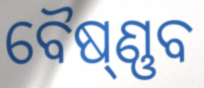
ବୈଷ୍ଣ୍ଣବ